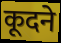
कूदने